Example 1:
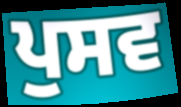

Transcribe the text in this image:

ਪੁਸਵ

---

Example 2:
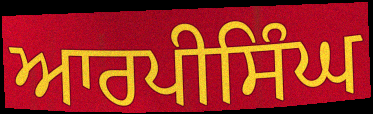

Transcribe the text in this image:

ਆਰਪੀਸਿੰਘ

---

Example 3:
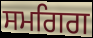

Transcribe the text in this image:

ਸਮਗਿਗ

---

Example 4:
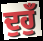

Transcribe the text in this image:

ਦੁਹੁਁ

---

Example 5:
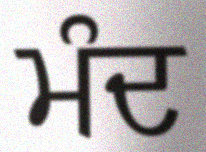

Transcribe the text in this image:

ਮੰਦ